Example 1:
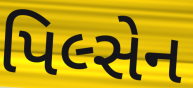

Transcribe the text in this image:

પિલ્સેન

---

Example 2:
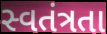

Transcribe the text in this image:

સ્વતંત્રતા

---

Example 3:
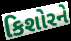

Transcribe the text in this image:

કિશોરને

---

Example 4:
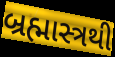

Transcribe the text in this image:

બ્રહ્માસ્ત્રથી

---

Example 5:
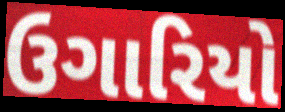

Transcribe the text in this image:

ઉગારિયો